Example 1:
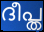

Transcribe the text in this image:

ദീപ്ത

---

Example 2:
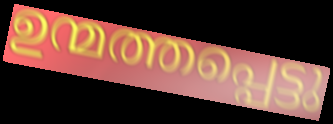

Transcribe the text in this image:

ഉന്മത്തപ്പെട്ടു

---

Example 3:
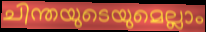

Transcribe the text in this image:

ചിന്തയുടെയുമെല്ലാം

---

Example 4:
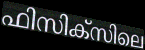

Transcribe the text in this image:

ഫിസിക്സിലെ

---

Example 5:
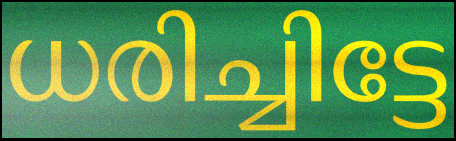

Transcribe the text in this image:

ധരിച്ചിട്ടേ